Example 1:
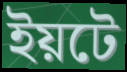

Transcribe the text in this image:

ইয়টে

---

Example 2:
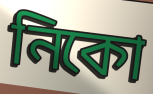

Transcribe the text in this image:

নিকো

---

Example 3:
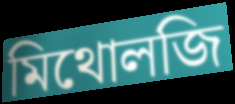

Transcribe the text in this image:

মিথোলজি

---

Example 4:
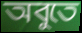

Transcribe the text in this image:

অবুতে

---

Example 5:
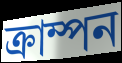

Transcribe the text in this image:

ক্রাম্পন